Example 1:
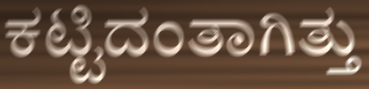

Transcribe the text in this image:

ಕಟ್ಟಿದಂತಾಗಿತ್ತು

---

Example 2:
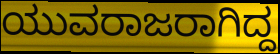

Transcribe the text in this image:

ಯುವರಾಜರಾಗಿದ್ದ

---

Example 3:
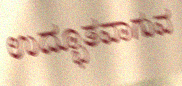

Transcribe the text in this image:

ಉದ್ಭೂತವಾಗುವ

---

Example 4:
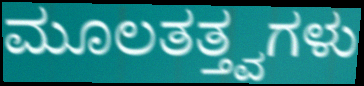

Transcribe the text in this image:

ಮೂಲತತ್ತ್ವಗಳು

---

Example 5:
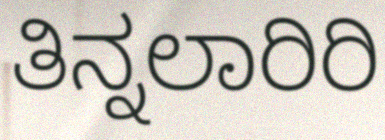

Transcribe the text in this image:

ತಿನ್ನಲಾರಿರಿ